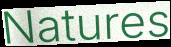
Natures